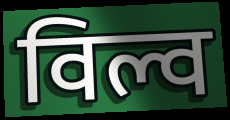
विल्व